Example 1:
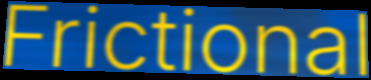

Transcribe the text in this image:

Frictional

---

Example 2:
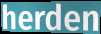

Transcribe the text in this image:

herden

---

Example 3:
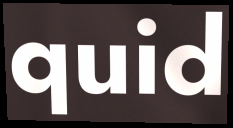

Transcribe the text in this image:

quid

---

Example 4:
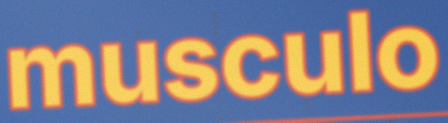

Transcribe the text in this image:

musculo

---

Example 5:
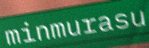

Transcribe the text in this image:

minmurasu